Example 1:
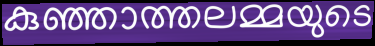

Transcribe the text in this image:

കുഞ്ഞാത്തലമ്മയുടെ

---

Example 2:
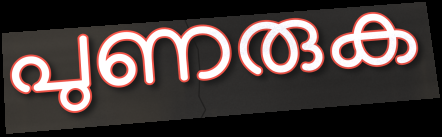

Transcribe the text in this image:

പുണരുക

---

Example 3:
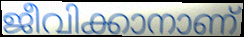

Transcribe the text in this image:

ജീവിക്കാനാണ്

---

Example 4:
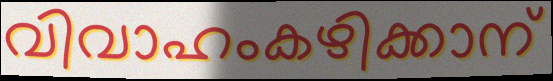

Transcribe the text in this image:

വിവാഹംകഴിക്കാന്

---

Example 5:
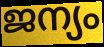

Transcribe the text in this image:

ജന്യം